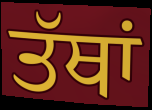
ਤੱਥਾਂ